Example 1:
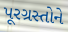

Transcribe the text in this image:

પૂરગ્રસ્તોને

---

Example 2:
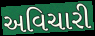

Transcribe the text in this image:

અવિચારી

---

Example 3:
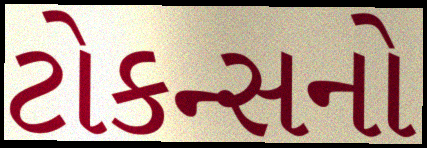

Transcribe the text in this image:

ટોકન્સનો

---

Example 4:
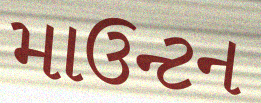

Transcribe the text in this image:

માઉન્ટન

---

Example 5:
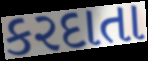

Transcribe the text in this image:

કરદાતા